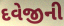
દવેજીની